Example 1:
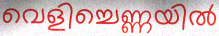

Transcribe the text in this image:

വെളിച്ചെണ്ണയിൽ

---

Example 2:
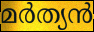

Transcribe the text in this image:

മർത്യൻ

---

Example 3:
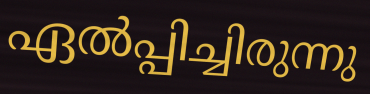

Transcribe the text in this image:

ഏൽപ്പിച്ചിരുന്നു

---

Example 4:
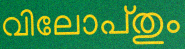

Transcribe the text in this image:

വിലോപ്തും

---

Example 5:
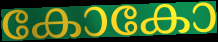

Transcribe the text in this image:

കോകോ